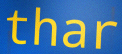
thar